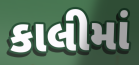
કાલીમાં